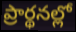
ప్రార్థనల్లో